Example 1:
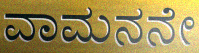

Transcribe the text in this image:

ವಾಮನನೇ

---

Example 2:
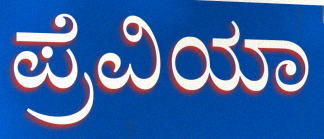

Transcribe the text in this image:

ಪ್ರೆವಿಯಾ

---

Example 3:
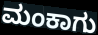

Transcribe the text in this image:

ಮಂಕಾಗು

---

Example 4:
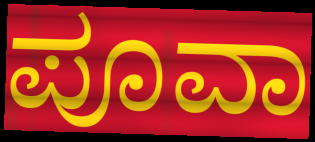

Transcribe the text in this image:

ಪೂವಾ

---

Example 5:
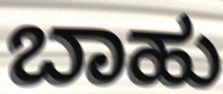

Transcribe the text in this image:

ಬಾಹು